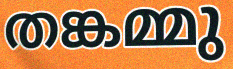
തങ്കമ്മു